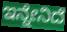
ಇನ್ನೇನಿದೆ